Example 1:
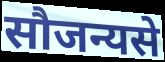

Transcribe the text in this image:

सौजन्यसे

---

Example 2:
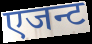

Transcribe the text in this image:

एजन्ट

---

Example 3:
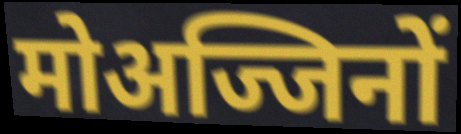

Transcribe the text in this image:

मोअज्जिनों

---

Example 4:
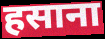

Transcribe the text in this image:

हसाना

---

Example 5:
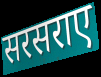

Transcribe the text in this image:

सरसराए